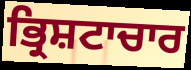
ਭ੍ਰਿਸ਼ਟਾਚਾਰ